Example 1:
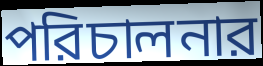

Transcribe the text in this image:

পরিচালনার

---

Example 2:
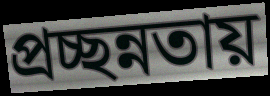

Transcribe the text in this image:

প্রচ্ছন্নতায়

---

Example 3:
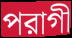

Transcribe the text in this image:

পরাগী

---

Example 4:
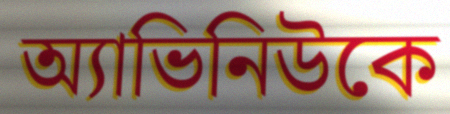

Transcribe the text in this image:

অ্যাভিনিউকে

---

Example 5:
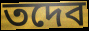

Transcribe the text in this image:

তদেব